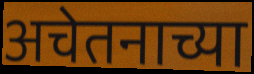
अचेतनाच्या